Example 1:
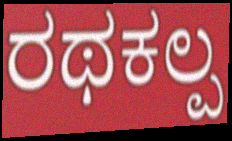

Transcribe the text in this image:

ರಥಕಲ್ಪ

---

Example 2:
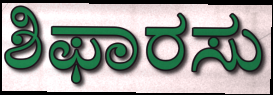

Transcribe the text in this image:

ಶಿಫಾರಸು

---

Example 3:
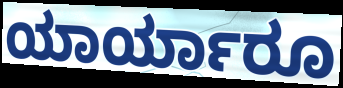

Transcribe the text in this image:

ಯಾರ್ಯಾರೂ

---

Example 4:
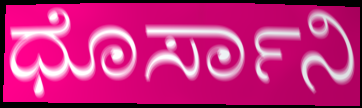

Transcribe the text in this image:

ಧೊರ್ಸಾನಿ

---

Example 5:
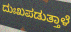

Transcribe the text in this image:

ದುಃಖಪಡುತ್ತಾಳೆ